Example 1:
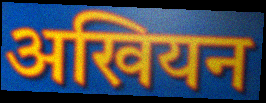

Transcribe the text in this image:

अखियन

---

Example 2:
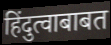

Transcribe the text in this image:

हिंदुत्वाबाबत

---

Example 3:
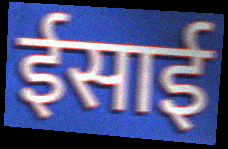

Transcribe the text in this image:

ईसाई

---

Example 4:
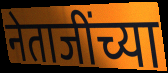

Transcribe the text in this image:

नेताजींच्या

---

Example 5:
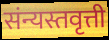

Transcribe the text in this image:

संन्यस्तवृत्ती